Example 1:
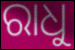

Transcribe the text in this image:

ରାଧୁ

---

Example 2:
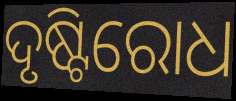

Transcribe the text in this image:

ଦୃଷ୍ଟିରୋଧ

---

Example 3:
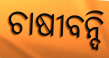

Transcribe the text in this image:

ଚାଷୀବନ୍ଦି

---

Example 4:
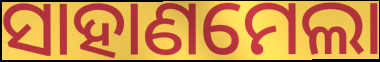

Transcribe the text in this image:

ସାହାଣମେଲା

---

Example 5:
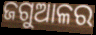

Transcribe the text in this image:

ଜଗୁଆଳର